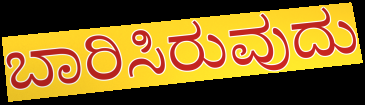
ಬಾರಿಸಿರುವುದು